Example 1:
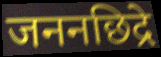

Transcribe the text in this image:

जननछिद्रे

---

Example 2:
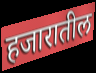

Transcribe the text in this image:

हजारातील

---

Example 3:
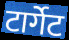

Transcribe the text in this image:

टार्गेट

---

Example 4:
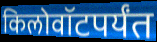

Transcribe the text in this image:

किलोवॉटपर्यंत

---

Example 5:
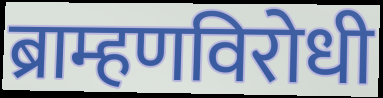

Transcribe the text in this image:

ब्राम्हणविरोधी